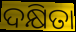
ଦକ୍ଷିତା